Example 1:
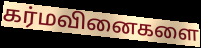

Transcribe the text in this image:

கர்மவினைகளை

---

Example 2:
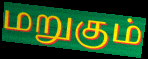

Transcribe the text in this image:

மறுகும்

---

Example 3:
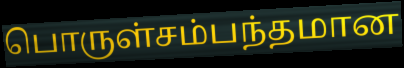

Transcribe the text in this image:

பொருள்சம்பந்தமான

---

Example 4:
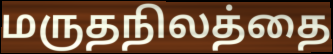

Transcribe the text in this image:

மருதநிலத்தை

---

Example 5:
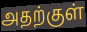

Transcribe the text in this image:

அதற்குள்